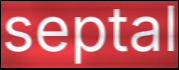
septal